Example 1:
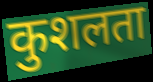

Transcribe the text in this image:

कुशलता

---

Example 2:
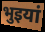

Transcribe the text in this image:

भुइयां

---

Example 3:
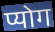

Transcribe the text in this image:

प्योग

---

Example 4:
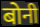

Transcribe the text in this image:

बोनी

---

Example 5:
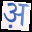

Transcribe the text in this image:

अ़